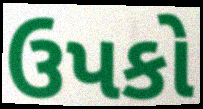
ઉપકો